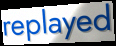
replayed